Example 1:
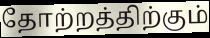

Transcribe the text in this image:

தோற்றத்திற்கும்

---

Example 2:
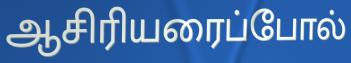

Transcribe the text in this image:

ஆசிரியரைப்போல்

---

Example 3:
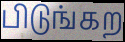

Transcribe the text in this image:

பிடுங்கற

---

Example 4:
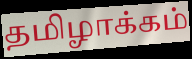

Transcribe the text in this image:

தமிழாக்கம்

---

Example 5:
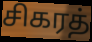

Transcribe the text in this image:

சிகரத்